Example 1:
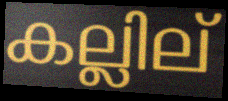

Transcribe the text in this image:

കല്ലില്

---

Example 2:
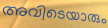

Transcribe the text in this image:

അവിടെയാരും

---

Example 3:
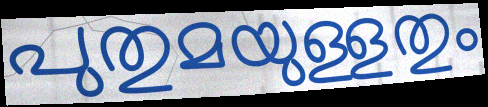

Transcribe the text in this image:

പുതുമയുള്ളതും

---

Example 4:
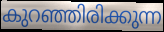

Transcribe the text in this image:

കുറഞ്ഞിരിക്കുന്ന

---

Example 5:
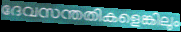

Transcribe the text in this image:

ദേവസന്തതികളെങ്കിലും